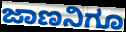
ಜಾಣನಿಗೂ